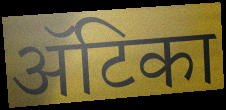
ॲटिका